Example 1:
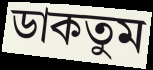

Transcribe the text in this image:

ডাকতুম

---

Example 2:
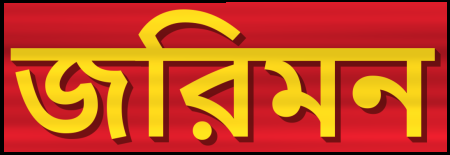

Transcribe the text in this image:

জরিমন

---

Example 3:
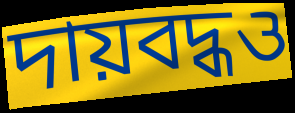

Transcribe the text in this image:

দায়বদ্ধও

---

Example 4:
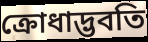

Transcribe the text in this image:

ক্রোধাদ্ভবতি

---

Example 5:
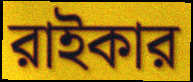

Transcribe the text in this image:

রাইকার